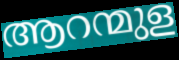
ആറന്മുള